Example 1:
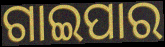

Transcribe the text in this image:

ଗାଇପାର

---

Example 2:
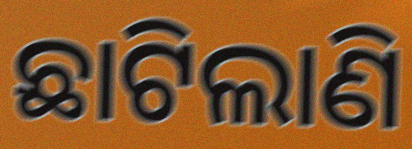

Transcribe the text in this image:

ଛାଟିଲାଣି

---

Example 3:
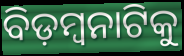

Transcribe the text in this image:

ବିଡ଼ମ୍ବନାଟିକୁ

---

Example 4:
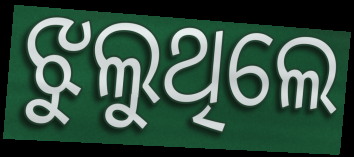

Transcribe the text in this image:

ଝୁଲୁଥିଲେ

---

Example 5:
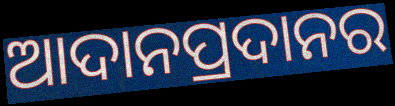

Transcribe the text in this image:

ଆଦାନପ୍ରଦାନର